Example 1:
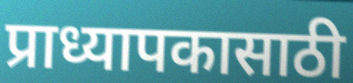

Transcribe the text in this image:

प्राध्यापकासाठी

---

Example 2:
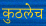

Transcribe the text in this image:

कुठलेच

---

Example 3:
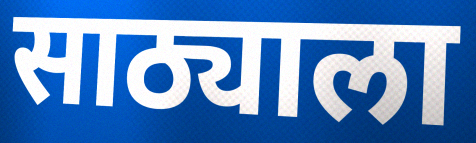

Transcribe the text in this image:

साठ्याला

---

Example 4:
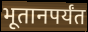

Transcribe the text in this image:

भूतानपर्यंत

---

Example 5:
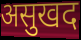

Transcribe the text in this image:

असुखद